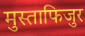
मुस्ताफिजुर